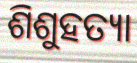
ଶିଶୁହତ୍ୟା